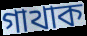
গাথাক